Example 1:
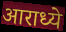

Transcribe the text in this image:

आराध्ये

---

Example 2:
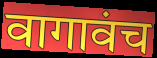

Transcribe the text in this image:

वागावंच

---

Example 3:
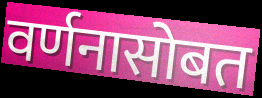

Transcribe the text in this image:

वर्णनासोबत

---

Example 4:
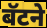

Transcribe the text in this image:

बॅटने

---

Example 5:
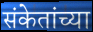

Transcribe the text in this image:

संकेतांच्या